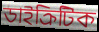
ডাইক্ৰিটিক